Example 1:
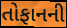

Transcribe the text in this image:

તોફાનની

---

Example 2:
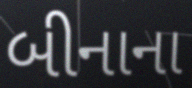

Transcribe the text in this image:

બીનાના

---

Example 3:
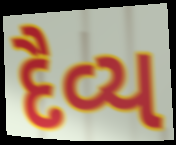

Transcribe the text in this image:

દૈવ્ય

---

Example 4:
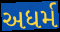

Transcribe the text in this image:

અધર્મ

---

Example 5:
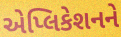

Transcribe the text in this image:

એપ્લિકેશનને